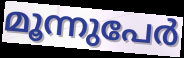
മൂന്നുപേർ